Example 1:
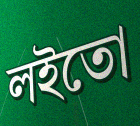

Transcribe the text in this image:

লইতো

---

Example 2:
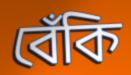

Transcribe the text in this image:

বেঁকি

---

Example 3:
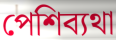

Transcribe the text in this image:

পেশিব্যথা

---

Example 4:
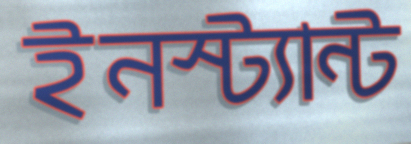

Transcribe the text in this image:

ইনস্ট্যান্ট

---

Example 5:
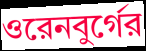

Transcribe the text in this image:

ওরেনবুর্গের